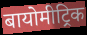
बायोमीट्रिक